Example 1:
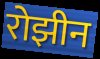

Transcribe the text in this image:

रोझीन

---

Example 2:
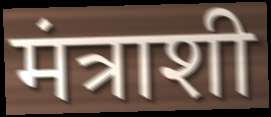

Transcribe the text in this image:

मंत्राशी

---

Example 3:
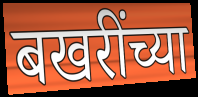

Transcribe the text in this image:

बखरींच्या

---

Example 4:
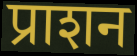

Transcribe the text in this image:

प्राशन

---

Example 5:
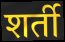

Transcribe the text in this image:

शर्ती